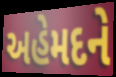
અહેમદને